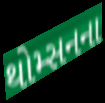
થોમ્સનના